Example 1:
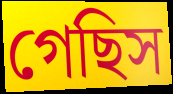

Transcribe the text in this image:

গেছিস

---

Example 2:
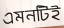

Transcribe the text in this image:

এমনটিই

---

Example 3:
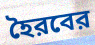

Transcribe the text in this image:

হৈরবের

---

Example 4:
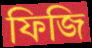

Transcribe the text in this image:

ফিজি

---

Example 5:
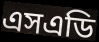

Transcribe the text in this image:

এসএডি